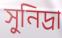
সুনিদ্রা